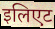
इलिएट